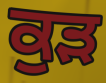
ਕੁੜ